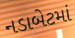
નડાબેટમાં